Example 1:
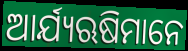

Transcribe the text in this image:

ଆର୍ଯ୍ୟଋଷିମାନେ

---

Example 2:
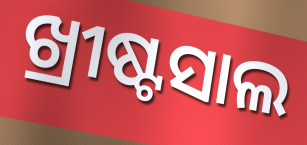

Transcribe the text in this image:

ଖ୍ରୀଷ୍ଟସାଲ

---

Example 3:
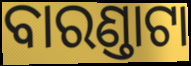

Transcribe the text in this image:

ବାରଣ୍ଡାଟା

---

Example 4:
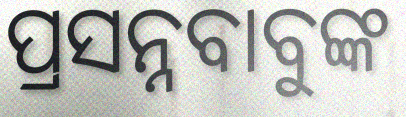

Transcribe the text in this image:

ପ୍ରସନ୍ନବାବୁଙ୍କ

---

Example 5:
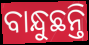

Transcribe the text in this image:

ବାନ୍ଧୁଛନ୍ତି